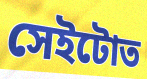
সেইটোত